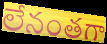
లేనంతగా